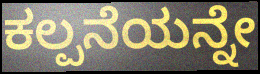
ಕಲ್ಪನೆಯನ್ನೇ